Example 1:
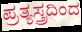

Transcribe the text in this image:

ಪ್ರತ್ಯಸ್ತ್ರದಿಂದ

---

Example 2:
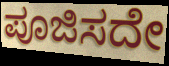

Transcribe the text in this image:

ಪೂಜಿಸದೇ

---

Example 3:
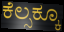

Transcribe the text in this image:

ಕೆಲ್ಸಕ್ಕೂ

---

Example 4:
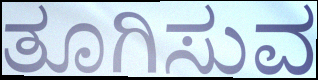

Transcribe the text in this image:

ತೂಗಿಸುವ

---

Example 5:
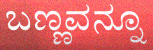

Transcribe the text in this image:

ಬಣ್ಣವನ್ನೂ